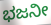
ಭಜನೀ